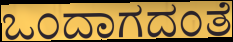
ಒಂದಾಗದಂತೆ